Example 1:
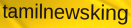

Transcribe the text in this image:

tamilnewsking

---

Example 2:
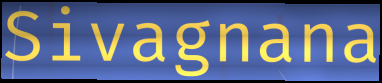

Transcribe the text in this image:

Sivagnana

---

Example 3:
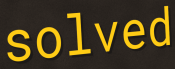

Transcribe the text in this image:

solved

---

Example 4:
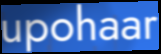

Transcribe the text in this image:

upohaar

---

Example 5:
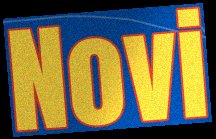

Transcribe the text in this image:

Novi